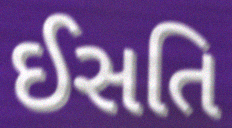
ઈસતિ